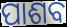
ପାଶବ